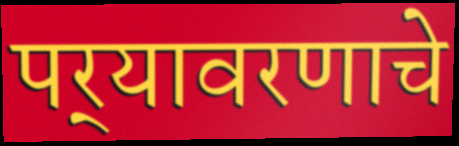
पर्यावरणाचे